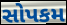
સોપકમ